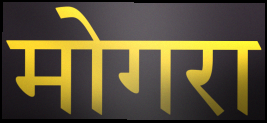
मोगरा